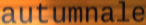
autumnale